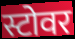
स्टोवर